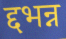
द्दभन्न